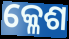
କ୍ଳେଶ